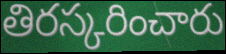
తిరస్కరించారు